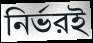
নির্ভরই